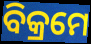
ବିକ୍ରମେ